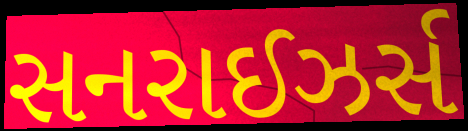
સનરાઈઝર્સ